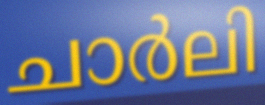
ചാർലി